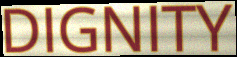
DIGNITY